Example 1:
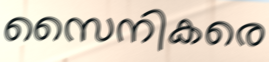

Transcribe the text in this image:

സൈനികരെ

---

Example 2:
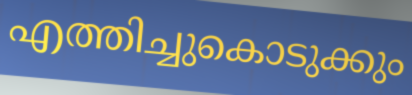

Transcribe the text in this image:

എത്തിച്ചുകൊടുക്കും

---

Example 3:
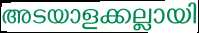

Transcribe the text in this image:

അടയാളക്കല്ലായി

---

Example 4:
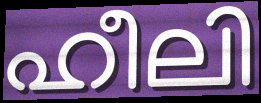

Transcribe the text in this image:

ഹീലി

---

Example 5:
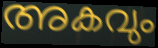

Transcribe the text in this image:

അകവും